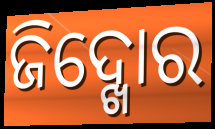
ଜିଦ୍ଖୋର